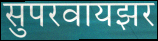
सुपरवायझर